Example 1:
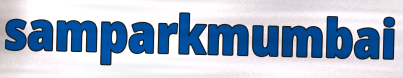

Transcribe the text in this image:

samparkmumbai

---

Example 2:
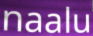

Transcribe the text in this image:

naalu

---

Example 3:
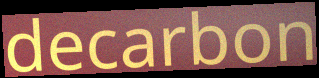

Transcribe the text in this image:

decarbon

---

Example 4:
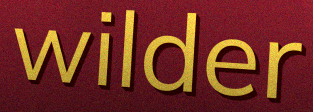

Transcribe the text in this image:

wilder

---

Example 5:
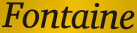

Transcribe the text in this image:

Fontaine